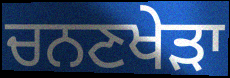
ਚਨਣਖੇੜਾ